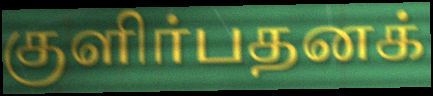
குளிர்பதனக்